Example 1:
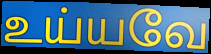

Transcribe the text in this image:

உய்யவே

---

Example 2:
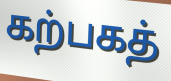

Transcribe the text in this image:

கற்பகத்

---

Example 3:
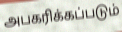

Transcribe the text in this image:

அபகரிக்கப்படும்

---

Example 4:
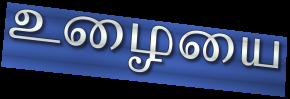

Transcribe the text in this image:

உழையை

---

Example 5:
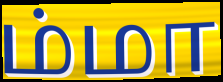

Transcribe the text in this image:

ம்மா